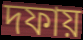
দফায়